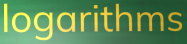
logarithms